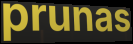
prunas